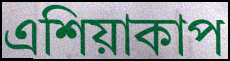
এশিয়াকাপ